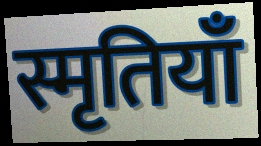
स्मृतियाँ